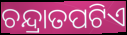
ଚନ୍ଦ୍ରାତପଟିଏ